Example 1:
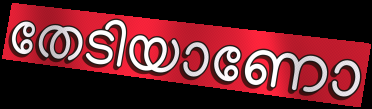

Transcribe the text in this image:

തേടിയാണോ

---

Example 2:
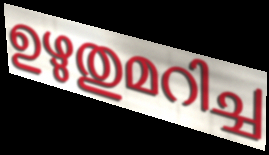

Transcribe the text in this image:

ഉഴുതുമറിച്ച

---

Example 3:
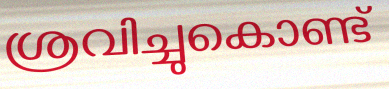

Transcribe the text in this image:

ശ്രവിച്ചുകൊണ്ട്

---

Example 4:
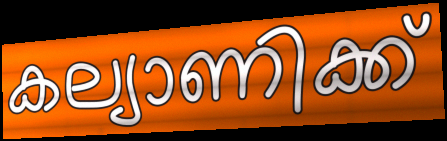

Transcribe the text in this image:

കല്യാണിക്ക്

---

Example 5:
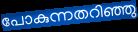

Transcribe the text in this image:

പോകുന്നതറിഞ്ഞു